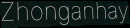
Zhonganhay